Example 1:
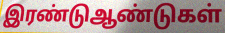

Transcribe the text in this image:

இரண்டுஆண்டுகள்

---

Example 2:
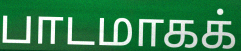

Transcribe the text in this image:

பாடமாகக்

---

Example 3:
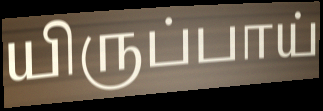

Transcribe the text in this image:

யிருப்பாய்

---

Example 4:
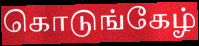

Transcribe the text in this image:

கொடுங்கேழ்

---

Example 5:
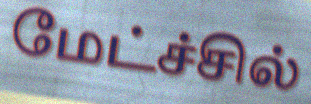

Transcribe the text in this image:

மேட்ச்சில்